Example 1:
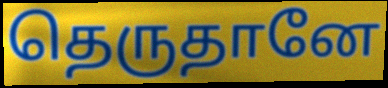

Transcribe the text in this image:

தெருதானே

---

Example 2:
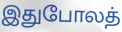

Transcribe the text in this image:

இதுபோலத்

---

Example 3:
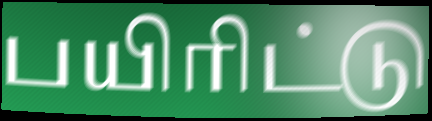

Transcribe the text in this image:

பயிரிட்டு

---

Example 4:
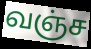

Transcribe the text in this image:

வஞ்ச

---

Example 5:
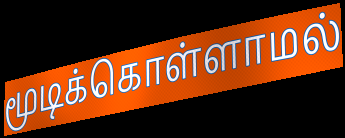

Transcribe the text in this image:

மூடிக்கொள்ளாமல்